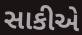
સાકીએ